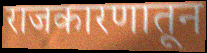
राजकारणातून